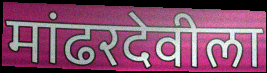
मांढरदेवीला